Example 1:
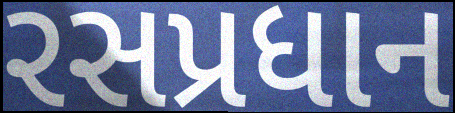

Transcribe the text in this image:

રસપ્રધાન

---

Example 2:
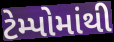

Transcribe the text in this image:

ટેમ્પોમાંથી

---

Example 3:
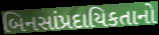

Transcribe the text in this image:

બિનસાંપ્રદાયિકતાનો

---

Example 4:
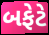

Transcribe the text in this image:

બફેટે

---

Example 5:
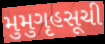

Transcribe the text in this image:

મુમુગૃહસૂચી